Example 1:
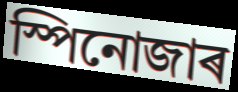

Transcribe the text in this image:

স্পিনোজাৰ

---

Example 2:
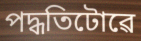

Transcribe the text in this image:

পদ্ধতিটোৱে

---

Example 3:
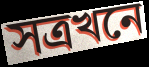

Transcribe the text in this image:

সত্ৰখনে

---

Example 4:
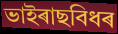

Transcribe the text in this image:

ভাইৰাছবিধৰ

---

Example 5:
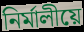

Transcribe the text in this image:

নিৰ্মালীয়ে